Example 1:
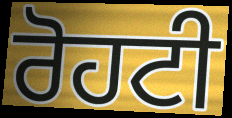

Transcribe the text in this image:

ਰੋਹਟੀ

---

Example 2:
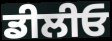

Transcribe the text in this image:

ਡੀਲੀਓ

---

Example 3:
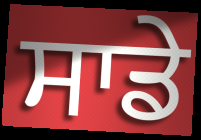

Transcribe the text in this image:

ਸਾਡੇ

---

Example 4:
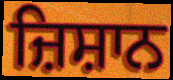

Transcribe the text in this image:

ਜ਼ਿਸ਼ਾਨ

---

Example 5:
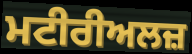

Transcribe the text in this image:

ਮਟੀਰੀਅਲਜ਼